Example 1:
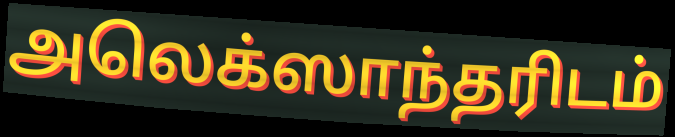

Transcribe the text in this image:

அலெக்ஸாந்தரிடம்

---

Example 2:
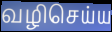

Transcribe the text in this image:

வழிசெய்ய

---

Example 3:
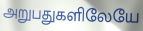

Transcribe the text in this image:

அறுபதுகளிலேயே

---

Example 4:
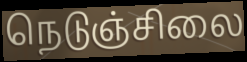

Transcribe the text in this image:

நெடுஞ்சிலை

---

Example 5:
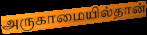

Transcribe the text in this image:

அருகாமையில்தான்